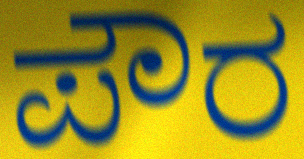
ಪೌರ